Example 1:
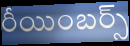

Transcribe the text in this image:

రీయింబర్స్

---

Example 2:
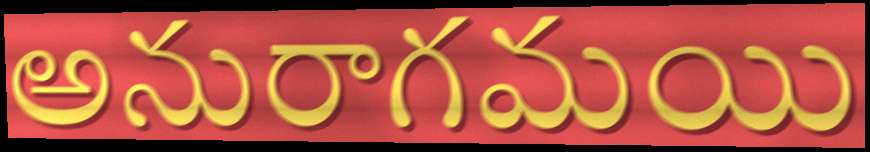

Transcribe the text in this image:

అనురాగమయి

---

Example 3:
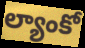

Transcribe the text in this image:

ల్యాంకో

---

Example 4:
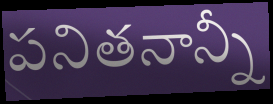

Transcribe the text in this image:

పనితనాన్నీ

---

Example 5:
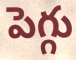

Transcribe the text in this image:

పెగ్గు